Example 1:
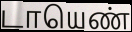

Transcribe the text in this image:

டாயெண்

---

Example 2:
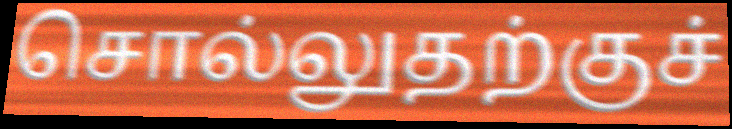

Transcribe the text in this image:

சொல்லுதற்குச்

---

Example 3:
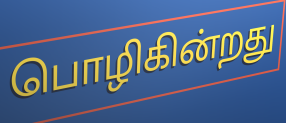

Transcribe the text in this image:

பொழிகின்றது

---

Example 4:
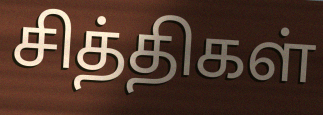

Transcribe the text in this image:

சித்திகள்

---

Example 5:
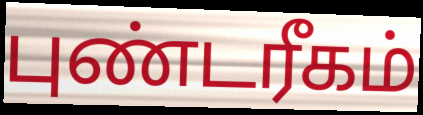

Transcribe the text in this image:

புண்டரீகம்